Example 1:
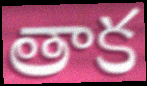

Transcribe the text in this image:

తాక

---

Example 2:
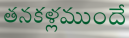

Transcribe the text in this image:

తనకళ్లముందే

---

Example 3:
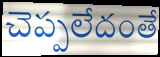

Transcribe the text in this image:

చెప్పలేదంతే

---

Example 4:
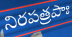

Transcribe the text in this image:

నిరపత్రపాః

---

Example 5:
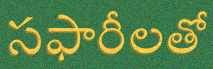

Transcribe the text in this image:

సఫారీలతో